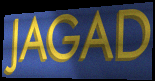
JAGAD